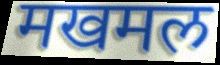
मखमल